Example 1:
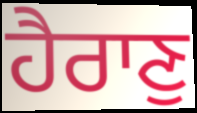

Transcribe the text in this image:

ਹੈਰਾਣੁ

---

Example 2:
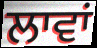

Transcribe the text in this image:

ਲਾਵਾਂ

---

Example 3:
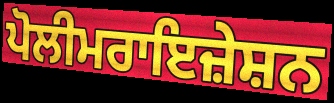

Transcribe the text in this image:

ਪੋਲੀਮਰਾਇਜ਼ੇਸ਼ਨ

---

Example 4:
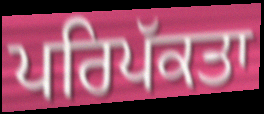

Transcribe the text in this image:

ਪਰਿਪੱਕਤਾ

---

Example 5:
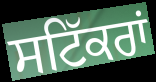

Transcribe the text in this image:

ਸਟਿੱਕਰਾਂ